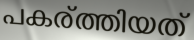
പകര്ത്തിയത്